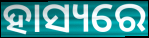
ହାସ୍ୟରେ